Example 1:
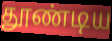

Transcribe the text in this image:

தூண்டிய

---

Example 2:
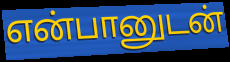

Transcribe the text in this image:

என்பானுடன்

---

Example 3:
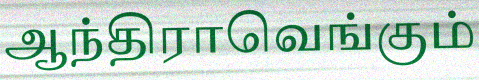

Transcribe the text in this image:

ஆந்திராவெங்கும்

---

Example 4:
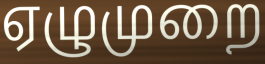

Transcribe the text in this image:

ஏழுமுறை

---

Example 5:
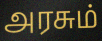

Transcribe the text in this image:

அரசும்